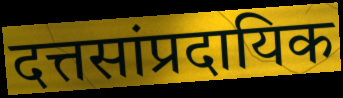
दत्तसांप्रदायिक